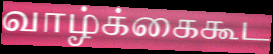
வாழ்க்கைகூட